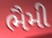
ભૈમી